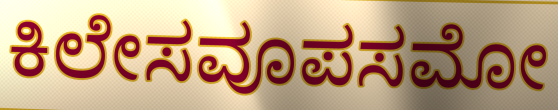
ಕಿಲೇಸವೂಪಸಮೋ